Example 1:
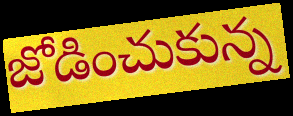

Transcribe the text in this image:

జోడించుకున్న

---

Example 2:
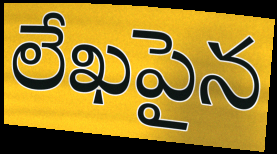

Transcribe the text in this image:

లేఖపైన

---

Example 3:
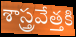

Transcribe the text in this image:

శాస్త్రవేత్తకి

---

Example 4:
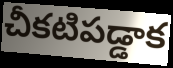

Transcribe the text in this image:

చీకటిపడ్డాక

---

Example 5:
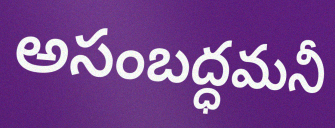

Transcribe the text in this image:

అసంబద్ధమనీ